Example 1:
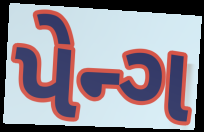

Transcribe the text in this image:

પેન્ગ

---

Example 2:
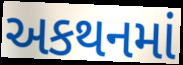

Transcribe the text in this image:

અકથનમાં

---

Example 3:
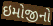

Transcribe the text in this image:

ઇમોજીનો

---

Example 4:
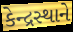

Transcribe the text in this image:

કેન્દ્રસ્થાને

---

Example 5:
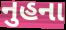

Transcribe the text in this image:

નુહના